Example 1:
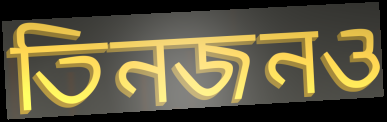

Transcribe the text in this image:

তিনজনও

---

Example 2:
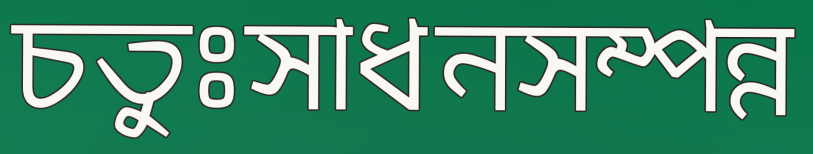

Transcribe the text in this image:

চতুঃসাধনসম্পন্ন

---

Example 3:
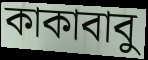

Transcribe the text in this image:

কাকাবাবু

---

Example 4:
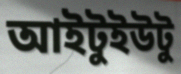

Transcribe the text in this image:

আইটুইউটু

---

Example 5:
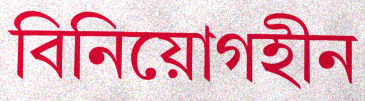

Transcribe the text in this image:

বিনিয়োগহীন